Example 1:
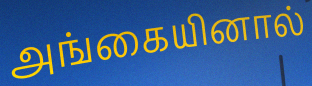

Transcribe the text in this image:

அங்கையினால்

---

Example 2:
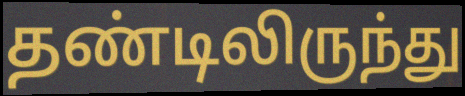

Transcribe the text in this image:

தண்டிலிருந்து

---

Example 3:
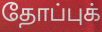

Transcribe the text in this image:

தோப்புக்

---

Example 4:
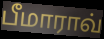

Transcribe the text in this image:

பீமாராவ்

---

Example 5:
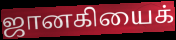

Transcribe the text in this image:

ஜானகியைக்